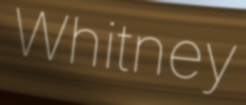
Whitney